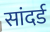
सांदर्ड